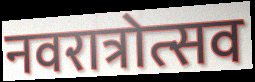
नवरात्रोत्सव